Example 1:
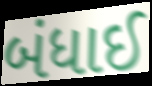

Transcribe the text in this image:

બંધાઈ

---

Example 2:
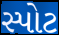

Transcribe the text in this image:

સ્પોટ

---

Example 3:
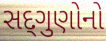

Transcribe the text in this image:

સદ્‌ગુણોનો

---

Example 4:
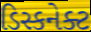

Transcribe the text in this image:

ડિસ્કનેક્ટ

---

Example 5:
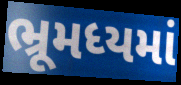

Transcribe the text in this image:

ભ્રૂમધ્યમાં